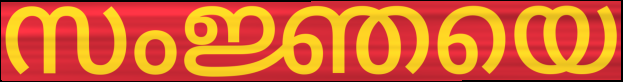
സംജ്ഞയെ